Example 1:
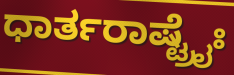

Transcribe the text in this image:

ಧಾರ್ತರಾಷ್ಟ್ರೈಃ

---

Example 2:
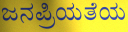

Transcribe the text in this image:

ಜನಪ್ರಿಯತೆಯ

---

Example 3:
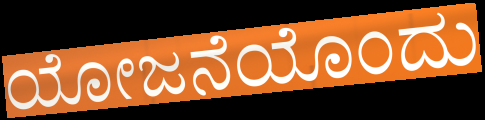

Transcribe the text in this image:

ಯೋಜನೆಯೊಂದು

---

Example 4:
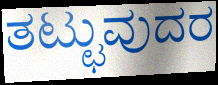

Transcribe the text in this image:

ತಟ್ಟುವುದರ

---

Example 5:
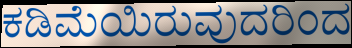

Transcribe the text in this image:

ಕಡಿಮೆಯಿರುವುದರಿಂದ